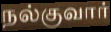
நல்குவார்